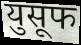
युसूफ